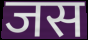
जस